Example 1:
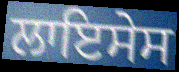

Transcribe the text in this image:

ਲਾਇਸੇਸ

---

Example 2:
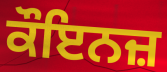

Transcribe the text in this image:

ਕੌਇਨਜ਼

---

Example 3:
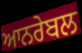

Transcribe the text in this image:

ਆਨਰੇਬਲ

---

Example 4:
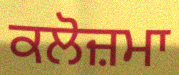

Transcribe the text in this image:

ਕਲੋਜ਼ਮਾ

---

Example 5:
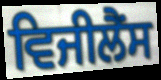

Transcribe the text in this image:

ਵਿਜੀਲੈਂਸ